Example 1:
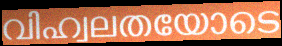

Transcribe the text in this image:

വിഹ്വലതയോടെ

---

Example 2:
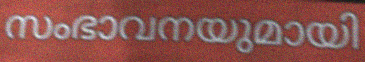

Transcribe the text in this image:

സംഭാവനയുമായി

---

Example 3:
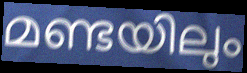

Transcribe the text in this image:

മണ്ടയിലും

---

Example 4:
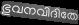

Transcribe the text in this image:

ഭുവനവിദിതേ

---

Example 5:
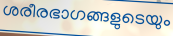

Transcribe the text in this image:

ശരീരഭാഗങ്ങളുടെയും